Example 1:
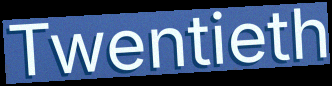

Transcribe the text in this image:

Twentieth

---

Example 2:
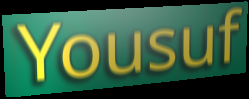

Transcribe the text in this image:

Yousuf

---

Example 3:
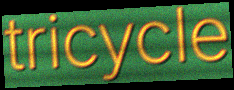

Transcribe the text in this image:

tricycle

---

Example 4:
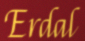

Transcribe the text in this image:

Erdal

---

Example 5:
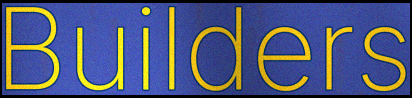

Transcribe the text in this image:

Builders